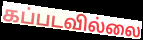
கப்படவில்லை